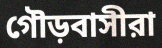
গৌড়বাসীরা